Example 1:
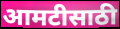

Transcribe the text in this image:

आमटीसाठी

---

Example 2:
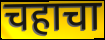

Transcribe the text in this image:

चहाचा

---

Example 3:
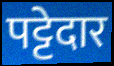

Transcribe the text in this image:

पट्टेदार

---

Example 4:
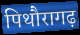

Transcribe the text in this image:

पिथौरागढ़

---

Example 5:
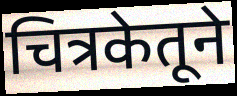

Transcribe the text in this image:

चित्रकेतूने